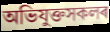
অভিযুক্তসকলৰ